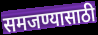
समजण्यासाठी